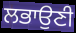
ਲਭਾਉਣੀ